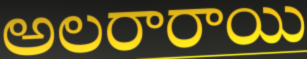
అలరారాయి